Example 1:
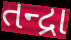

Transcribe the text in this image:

તન્દ્રા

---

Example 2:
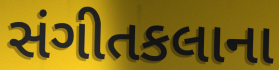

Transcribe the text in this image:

સંગીતકલાના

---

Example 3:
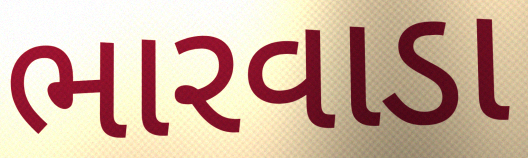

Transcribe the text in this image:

ભારવાડા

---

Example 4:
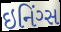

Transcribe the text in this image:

ઇનિંગ્સ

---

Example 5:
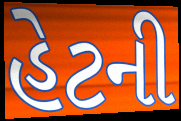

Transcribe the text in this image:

હેટની